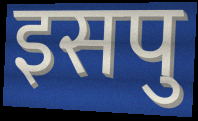
इसपु